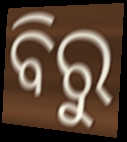
ବିରୁ